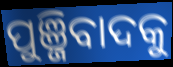
ପୁଞ୍ଜିବାଦକୁ